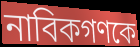
নাবিকগণকে